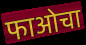
फाओचा